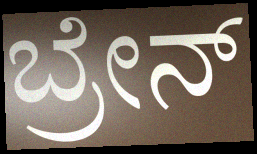
ಬ್ರೇನ್